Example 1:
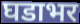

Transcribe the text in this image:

घडाभर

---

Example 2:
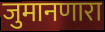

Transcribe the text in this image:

जुमानणारा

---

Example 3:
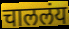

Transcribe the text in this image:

चाललंय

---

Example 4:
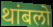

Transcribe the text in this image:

थांबलो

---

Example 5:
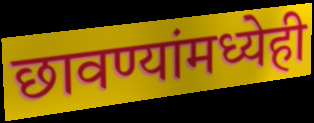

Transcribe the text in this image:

छावण्यांमध्येही